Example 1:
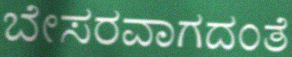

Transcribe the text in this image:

ಬೇಸರವಾಗದಂತೆ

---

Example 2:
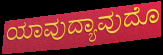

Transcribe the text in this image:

ಯಾವುದ್ಯಾವುದೊ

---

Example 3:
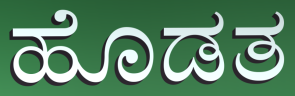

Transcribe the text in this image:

ಹೊಡತ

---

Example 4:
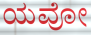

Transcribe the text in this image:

ಯವೋ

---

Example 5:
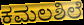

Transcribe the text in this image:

ಕಮಲಶಿಲೆ